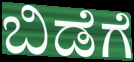
ಬಿಡೆಗೆ